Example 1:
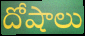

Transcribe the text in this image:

దోషాలు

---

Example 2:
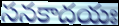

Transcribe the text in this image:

సనకాదయః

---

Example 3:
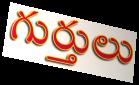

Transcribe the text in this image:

గుర్తులు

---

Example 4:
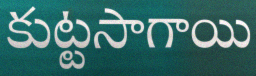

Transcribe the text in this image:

కుట్టసాగాయి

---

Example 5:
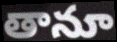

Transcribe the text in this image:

తానూ